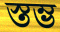
স্তম্ভ